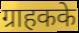
ग्राहकके